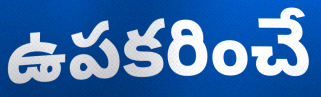
ఉపకరించే